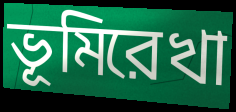
ভূমিরেখা